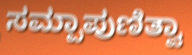
ಸಮ್ಪಾಪುಣಿತ್ವಾ